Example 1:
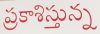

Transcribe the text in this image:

ప్రకాశిస్తున్న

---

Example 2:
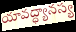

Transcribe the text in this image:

యావద్ధ్యానస్య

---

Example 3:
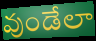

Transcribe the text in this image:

వుండేలా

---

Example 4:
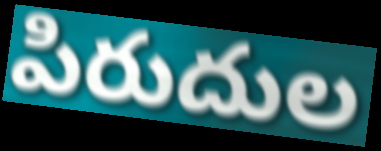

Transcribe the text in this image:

పిరుదుల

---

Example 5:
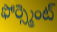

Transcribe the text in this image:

ఫోర్స్మెంట్